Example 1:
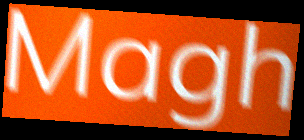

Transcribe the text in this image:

Magh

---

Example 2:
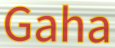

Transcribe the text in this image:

Gaha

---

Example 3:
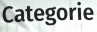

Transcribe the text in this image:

Categorie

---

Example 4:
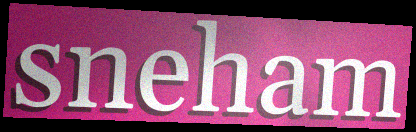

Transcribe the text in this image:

sneham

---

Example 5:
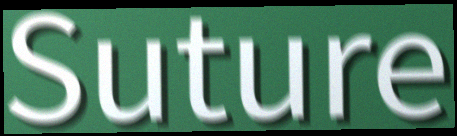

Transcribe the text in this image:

Suture